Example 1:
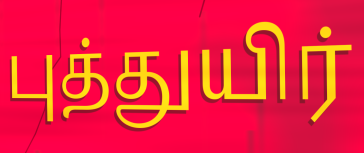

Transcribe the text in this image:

புத்துயிர்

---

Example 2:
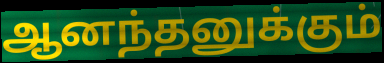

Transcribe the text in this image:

ஆனந்தனுக்கும்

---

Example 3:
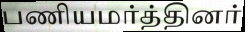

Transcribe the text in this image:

பணியமர்த்தினர்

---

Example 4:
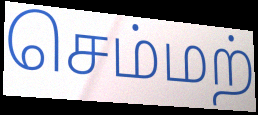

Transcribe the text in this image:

செம்மற்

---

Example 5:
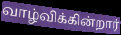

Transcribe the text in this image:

வாழ்விக்கின்றார்